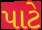
પાટે